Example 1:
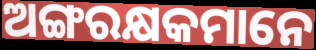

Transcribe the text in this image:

ଅଙ୍ଗରକ୍ଷକମାନେ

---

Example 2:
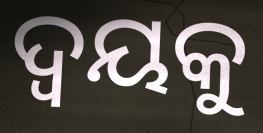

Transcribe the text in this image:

ଦ୍ୱୟକୁ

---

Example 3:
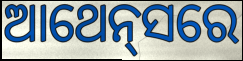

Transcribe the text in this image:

ଆଥେନ୍‍ସରେ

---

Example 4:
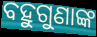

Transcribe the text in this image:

ବହୁଗୁଣାଙ୍କ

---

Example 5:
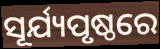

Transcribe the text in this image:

ସୂର୍ଯ୍ୟପୃଷ୍ଠରେ